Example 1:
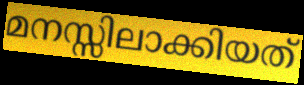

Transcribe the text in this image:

മനസ്സിലാക്കിയത്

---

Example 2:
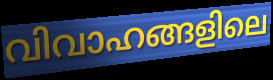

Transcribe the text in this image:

വിവാഹങ്ങളിലെ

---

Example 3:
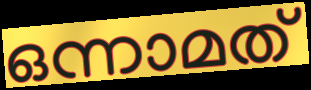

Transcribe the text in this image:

ഒന്നാമത്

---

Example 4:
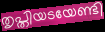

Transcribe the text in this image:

തൃപ്തിയടയേണ്ടി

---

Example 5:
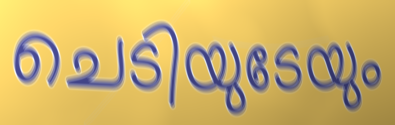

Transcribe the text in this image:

ചെടിയുടേയും